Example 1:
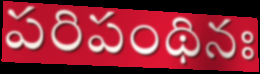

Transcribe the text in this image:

పరిపంథినః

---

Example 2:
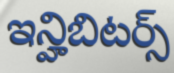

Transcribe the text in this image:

ఇన్హిబిటర్స్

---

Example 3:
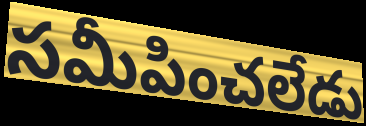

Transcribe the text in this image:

సమీపించలేడు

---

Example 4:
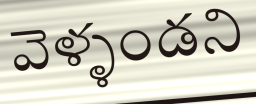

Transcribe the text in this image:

వెళ్ళండని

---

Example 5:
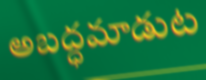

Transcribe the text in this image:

అబద్ధమాడుట